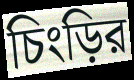
চিংড়ির